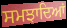
ਸਮਝਾਦਿਆਂ